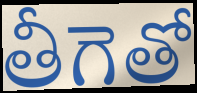
తీగెతో